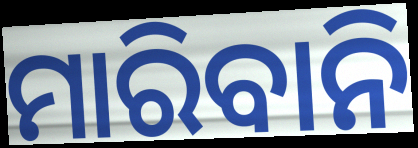
ମାରିବାନି